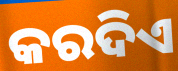
କରଦିଏ